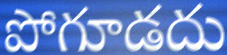
పోగూడదు